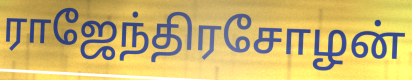
ராஜேந்திரசோழன்